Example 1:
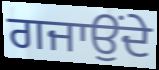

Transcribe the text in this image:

ਗਜਾਉਂਦੇ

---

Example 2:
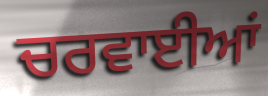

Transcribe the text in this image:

ਚਰਵਾਈਆਂ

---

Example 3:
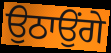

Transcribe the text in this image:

ਉਠਾਉਂਗੇ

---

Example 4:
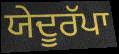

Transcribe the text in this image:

ਯੇਦੂਰੱਪਾ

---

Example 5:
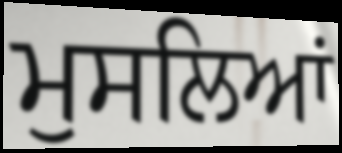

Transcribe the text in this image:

ਮੁਸਲਿਆਂ